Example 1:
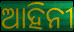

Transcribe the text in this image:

ଆହିନୀ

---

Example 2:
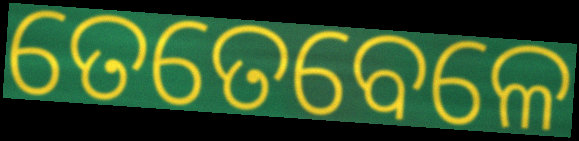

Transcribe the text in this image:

ତେତେବେଳେ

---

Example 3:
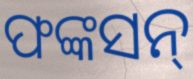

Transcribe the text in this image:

ଫଙ୍କସନ୍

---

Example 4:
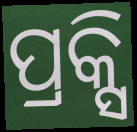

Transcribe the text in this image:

ପ୍ରକ୍ସି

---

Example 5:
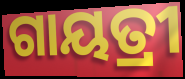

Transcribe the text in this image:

ଗାୟତ୍ରୀ